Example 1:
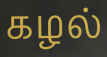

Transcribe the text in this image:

கழல்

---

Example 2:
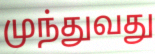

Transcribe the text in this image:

முந்துவது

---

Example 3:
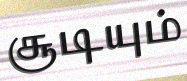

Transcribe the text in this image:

சூடியும்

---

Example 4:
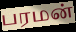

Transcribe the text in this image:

பரமன்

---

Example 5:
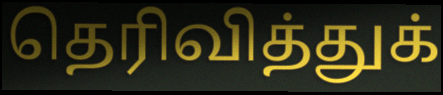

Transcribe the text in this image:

தெரிவித்துக்